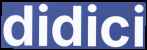
didici